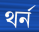
থর্ন